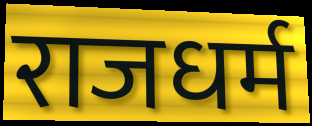
राजधर्म